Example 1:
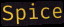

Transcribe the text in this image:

Spice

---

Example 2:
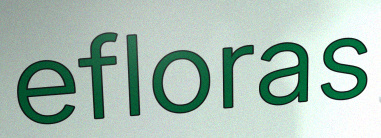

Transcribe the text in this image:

efloras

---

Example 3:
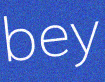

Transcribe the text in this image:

bey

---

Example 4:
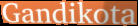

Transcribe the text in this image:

Gandikota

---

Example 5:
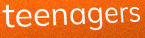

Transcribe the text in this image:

teenagers